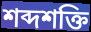
শব্দশক্তি